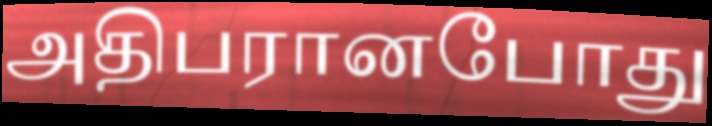
அதிபரானபோது